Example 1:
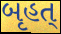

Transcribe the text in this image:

બૃહત્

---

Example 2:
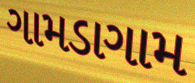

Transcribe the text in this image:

ગામડાગામ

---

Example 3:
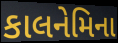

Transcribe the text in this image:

કાલનેમિના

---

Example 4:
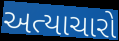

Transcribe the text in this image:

અત્યાચારો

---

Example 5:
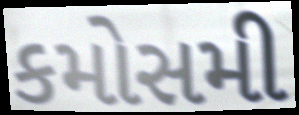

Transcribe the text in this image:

કમોસમી